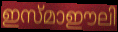
ഇസ്മാഈലി